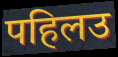
पहिलउ